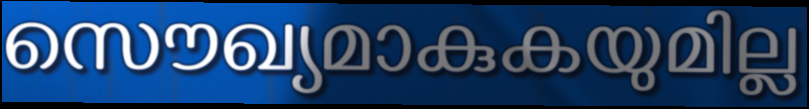
സൌഖ്യമാകുകയുമില്ല